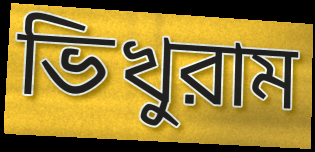
ভিখুরাম